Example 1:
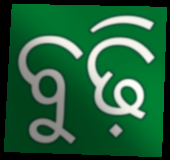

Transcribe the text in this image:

ବୁଢ଼ି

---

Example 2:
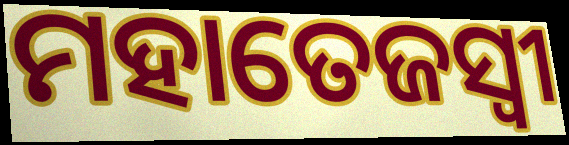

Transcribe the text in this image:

ମହାତେଜସ୍ୱୀ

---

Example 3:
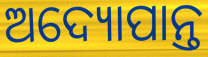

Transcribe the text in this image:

ଅଦ୍ୟୋପାନ୍ତ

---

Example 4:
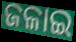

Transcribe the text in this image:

ଜଳାଇ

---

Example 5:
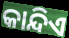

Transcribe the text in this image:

କାନ୍ଦିଏ